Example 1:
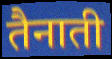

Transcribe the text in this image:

तैनाती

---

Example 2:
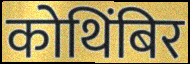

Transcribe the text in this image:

कोथिंबिर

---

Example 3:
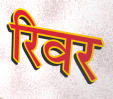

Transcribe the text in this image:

रिवर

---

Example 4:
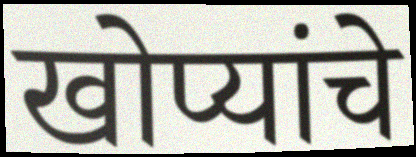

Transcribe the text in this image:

खोप्यांचे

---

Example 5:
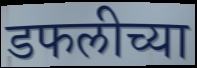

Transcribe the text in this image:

डफलीच्या